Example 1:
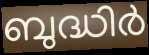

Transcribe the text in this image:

ബുദ്ധിർ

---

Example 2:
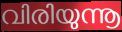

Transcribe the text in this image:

വിരിയുന്നൂ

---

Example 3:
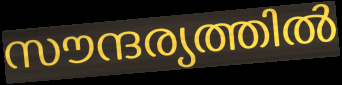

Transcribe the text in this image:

സൗന്ദര്യത്തിൽ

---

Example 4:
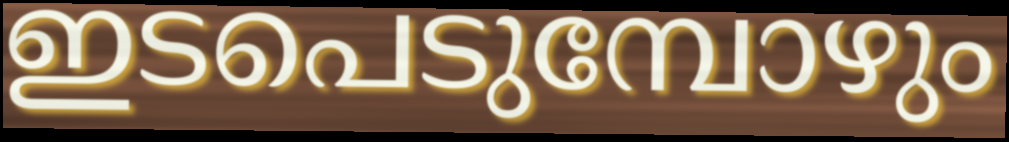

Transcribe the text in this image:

ഇടപെടുമ്പോഴും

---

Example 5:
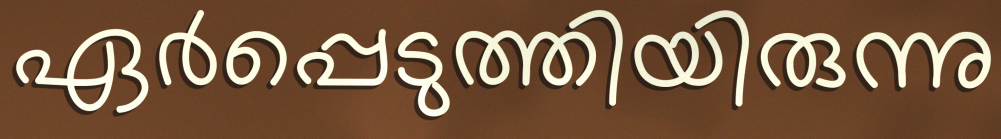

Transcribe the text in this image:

ഏർപ്പെടുത്തിയിരുന്നു